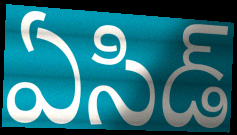
ఏసిడ్